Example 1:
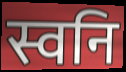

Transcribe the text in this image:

स्वनि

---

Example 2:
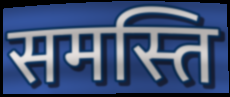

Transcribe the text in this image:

समस्ति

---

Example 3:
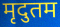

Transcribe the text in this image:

मृदुतम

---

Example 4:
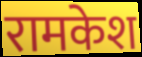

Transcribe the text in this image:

रामकेश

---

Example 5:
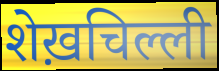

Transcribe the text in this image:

शेख़चिल्ली